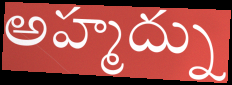
అహ్మద్ను